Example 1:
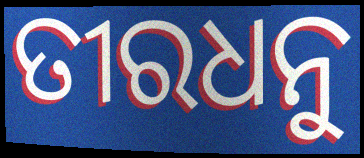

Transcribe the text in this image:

ତୀରଧନୁ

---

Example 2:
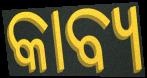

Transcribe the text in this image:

କାବ୍ୟ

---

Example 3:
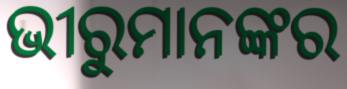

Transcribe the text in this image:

ଭୀରୁମାନଙ୍କର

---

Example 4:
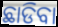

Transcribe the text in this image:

ଛାଡିବା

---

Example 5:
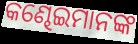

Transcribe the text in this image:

କଣ୍ଢେଇମାନଙ୍କ